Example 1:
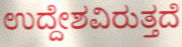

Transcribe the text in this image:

ಉದ್ದೇಶವಿರುತ್ತದೆ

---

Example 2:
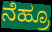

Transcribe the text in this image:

ನೆಹ್ರೂ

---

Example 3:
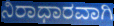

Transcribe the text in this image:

ನಿರಾಧಾರವಾಗಿ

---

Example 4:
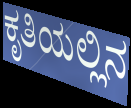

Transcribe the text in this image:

ಕೃತಿಯಲ್ಲಿನ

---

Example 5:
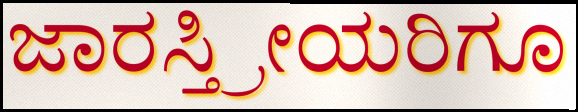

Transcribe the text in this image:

ಜಾರಸ್ತ್ರೀಯರಿಗೂ